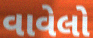
વાવેલો